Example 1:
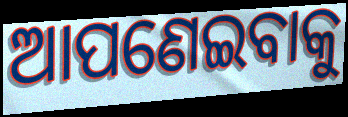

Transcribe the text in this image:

ଆପଣେଇବାକୁ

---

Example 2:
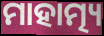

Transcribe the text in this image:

ମାହାତ୍ମ୍ୟ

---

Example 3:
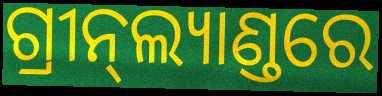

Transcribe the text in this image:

ଗ୍ରୀନ୍‍ଲ୍ୟାଣ୍ଡରେ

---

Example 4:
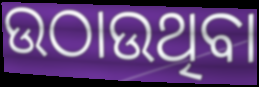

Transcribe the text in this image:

ଉଠାଉଥିବା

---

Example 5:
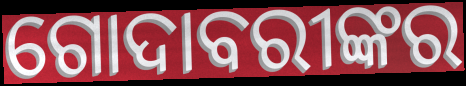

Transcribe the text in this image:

ଗୋଦାବରୀଙ୍କର